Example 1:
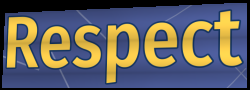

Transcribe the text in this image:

Respect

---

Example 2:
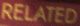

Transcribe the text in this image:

RELATED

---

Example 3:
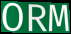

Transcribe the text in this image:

ORM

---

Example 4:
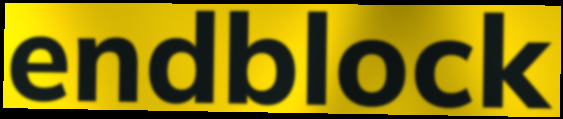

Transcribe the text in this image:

endblock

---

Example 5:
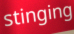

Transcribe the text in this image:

stinging